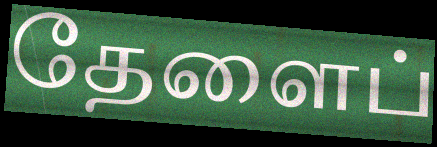
தேளைப்